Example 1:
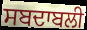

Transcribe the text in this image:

ਸਬਦਾਬਲੀ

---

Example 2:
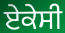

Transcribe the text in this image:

ਏਕੇਸੀ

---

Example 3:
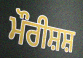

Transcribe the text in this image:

ਮੌਰੀਸ਼ਸ਼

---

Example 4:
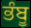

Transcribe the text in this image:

ਭੰਬੂ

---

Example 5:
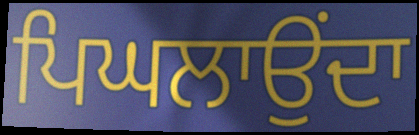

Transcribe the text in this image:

ਪਿਘਲਾਉਂਦਾ